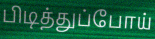
பிடித்துப்போய்